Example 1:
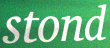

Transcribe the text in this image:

stond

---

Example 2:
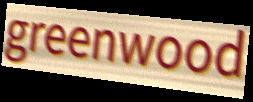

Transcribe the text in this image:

greenwood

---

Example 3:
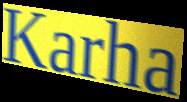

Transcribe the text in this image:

Karha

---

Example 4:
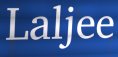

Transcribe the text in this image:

Laljee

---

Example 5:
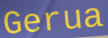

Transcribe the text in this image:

Gerua